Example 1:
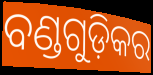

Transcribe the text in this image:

ବଣ୍ଡଗୁଡ଼ିକର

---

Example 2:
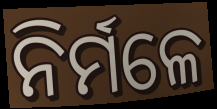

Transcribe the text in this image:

ନିର୍ମଳେ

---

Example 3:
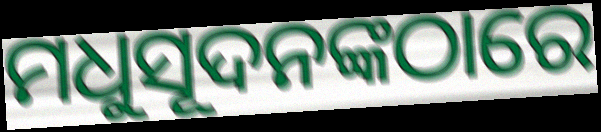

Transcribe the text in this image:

ମଧୁସୂଦନଙ୍କଠାରେ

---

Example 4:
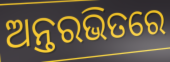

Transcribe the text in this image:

ଅନ୍ତରଭିତରେ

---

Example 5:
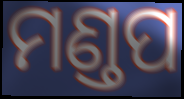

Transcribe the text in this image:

ମଣ୍ଡପ